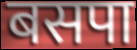
बसपा